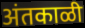
अंतकाळी